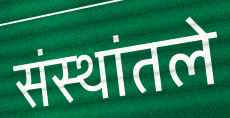
संस्थांतले